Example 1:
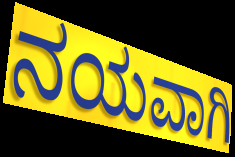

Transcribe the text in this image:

ನಯವಾಗಿ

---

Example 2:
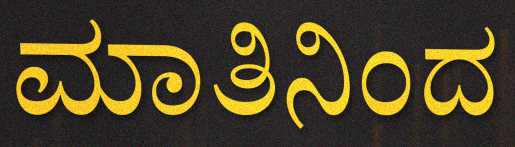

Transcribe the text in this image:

ಮಾತಿನಿಂದ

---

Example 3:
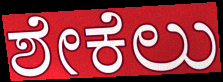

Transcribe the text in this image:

ಶೇಕೆಲು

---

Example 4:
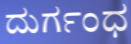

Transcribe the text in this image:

ದುರ್ಗಂಧ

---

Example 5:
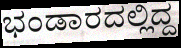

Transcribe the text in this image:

ಭಂಡಾರದಲ್ಲಿದ್ದ